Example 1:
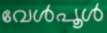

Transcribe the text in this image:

വേൾപൂൾ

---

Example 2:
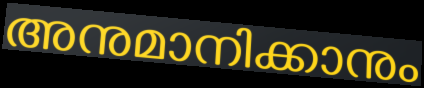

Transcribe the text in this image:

അനുമാനിക്കാനും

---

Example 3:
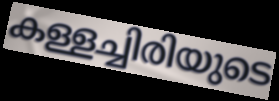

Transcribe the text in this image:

കള്ളച്ചിരിയുടെ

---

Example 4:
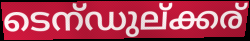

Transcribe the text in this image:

ടെന്ഡുല്ക്കര്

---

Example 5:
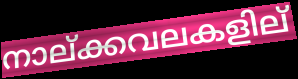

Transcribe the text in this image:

നാല്ക്കവലകളില്